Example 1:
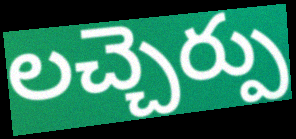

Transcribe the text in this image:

లచ్చెర్పు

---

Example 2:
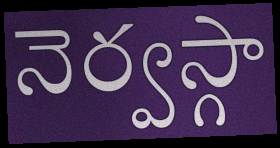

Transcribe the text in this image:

నెర్వస్గా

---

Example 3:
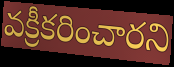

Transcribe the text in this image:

వక్రీకరించారని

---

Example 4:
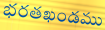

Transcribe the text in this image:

భరతఖండము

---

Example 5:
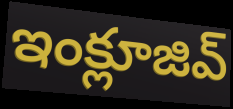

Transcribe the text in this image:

ఇంక్లూజివ్